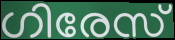
ഗിരേസ്